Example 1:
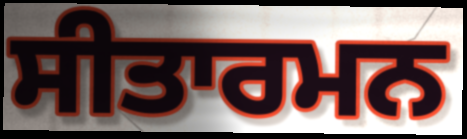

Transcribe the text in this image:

ਸੀਤਾਰਮਨ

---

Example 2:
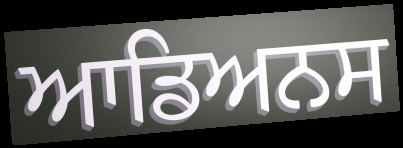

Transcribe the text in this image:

ਆਡਿਅਨਸ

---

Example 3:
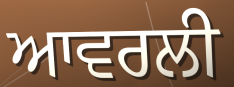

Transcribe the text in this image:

ਆਵਰਲੀ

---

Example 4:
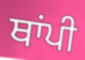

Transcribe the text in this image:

ਥਾਂਪੀ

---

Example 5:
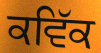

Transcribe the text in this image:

ਕਵਿੱਕ